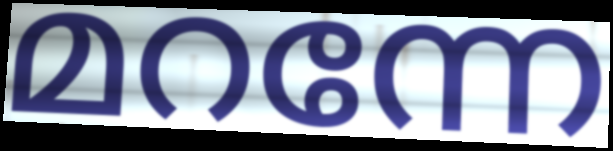
മറന്നേ